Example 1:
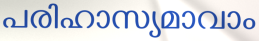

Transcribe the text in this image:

പരിഹാസ്യമാവാം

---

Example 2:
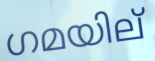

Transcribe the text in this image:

ഗമയില്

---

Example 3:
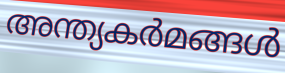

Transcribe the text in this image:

അന്ത്യകർമങ്ങൾ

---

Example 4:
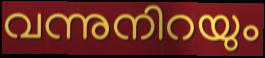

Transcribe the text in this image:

വന്നുനിറയും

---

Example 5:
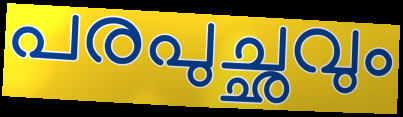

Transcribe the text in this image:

പരപുച്ഛവും